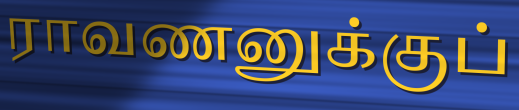
ராவணனுக்குப்